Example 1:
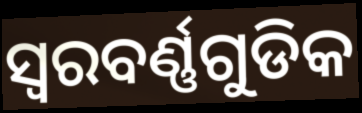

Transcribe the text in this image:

ସ୍ୱରବର୍ଣ୍ଣଗୁଡିକ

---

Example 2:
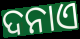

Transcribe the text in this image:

ଦନାଏ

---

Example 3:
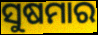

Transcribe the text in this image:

ସୁଷମାର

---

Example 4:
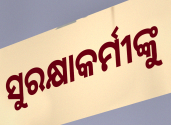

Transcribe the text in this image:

ସୁରକ୍ଷାକର୍ମୀଙ୍କୁ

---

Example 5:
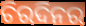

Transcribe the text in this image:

ଚିରଦିନର